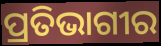
ପ୍ରତିଭାଗୀର